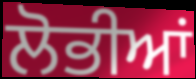
ਲੋਭੀਆਂ